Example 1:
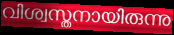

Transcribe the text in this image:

വിശ്വസ്തനായിരുന്നു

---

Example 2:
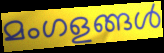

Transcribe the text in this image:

മംഗളങ്ങൾ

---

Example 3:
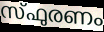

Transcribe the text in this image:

സ്ഫുരണം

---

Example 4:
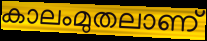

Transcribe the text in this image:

കാലംമുതലാണ്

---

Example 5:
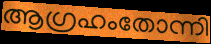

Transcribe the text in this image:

ആഗ്രഹംതോന്നി